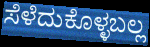
ಸೆಳೆದುಕೊಳ್ಳಬಲ್ಲ